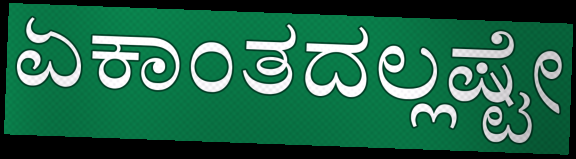
ಏಕಾಂತದಲ್ಲಷ್ಟೇ